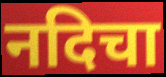
नदिचा